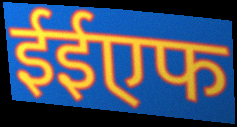
ईईएफ